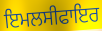
ਇਮਲਸੀਫਾਇਰ